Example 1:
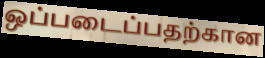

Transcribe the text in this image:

ஒப்படைப்பதற்கான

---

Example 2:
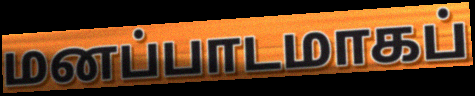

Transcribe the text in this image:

மனப்பாடமாகப்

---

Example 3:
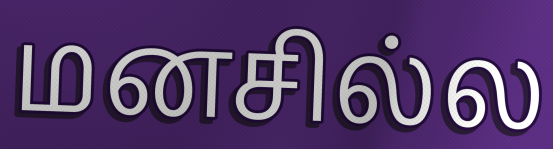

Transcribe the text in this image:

மனசில்ல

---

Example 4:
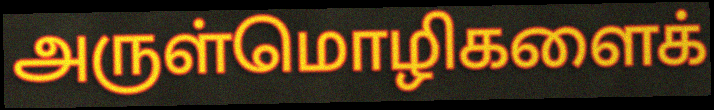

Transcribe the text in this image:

அருள்மொழிகளைக்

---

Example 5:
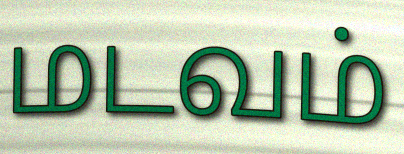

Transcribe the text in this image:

மடவம்